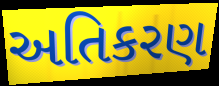
અતિકરણ